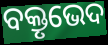
ବକ୍ତୃଭେଦ